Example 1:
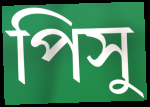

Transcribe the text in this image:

পিসু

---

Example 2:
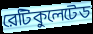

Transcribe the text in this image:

রেটিকুলেটেড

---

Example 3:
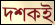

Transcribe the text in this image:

দশকই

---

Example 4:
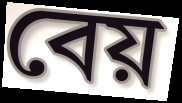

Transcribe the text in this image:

বেয়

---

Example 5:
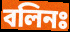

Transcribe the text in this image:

বলিনঃ